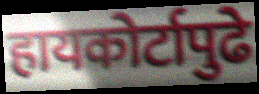
हायकोर्टापुढे